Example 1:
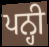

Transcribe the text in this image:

ਪਨ੍ਹੀ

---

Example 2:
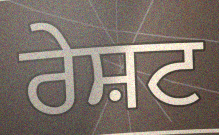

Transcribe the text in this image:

ਰੇਸ਼ਟ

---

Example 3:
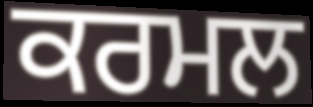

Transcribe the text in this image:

ਕਰਮਲ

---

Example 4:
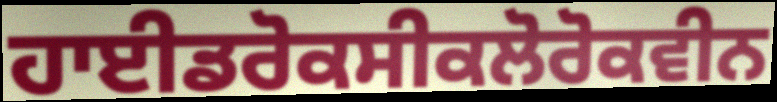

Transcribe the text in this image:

ਹਾਈਡਰੋਕਸੀਕਲੋਰੋਕਵੀਨ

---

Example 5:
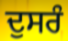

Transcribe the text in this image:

ਦੁਸਰੰ